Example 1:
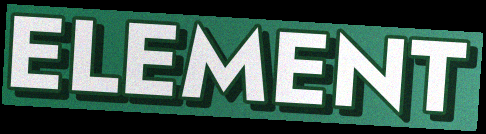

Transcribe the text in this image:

ELEMENT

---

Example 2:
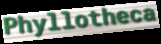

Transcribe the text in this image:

Phyllotheca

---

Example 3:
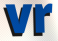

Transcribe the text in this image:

vr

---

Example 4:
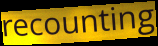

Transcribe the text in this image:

recounting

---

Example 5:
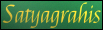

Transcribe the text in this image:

Satyagrahis